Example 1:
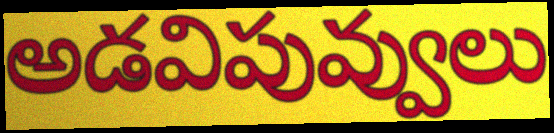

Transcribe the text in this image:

అడవిపువ్వులు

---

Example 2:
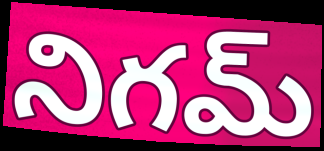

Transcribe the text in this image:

నిగమ్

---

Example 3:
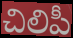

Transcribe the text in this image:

చిలిపీ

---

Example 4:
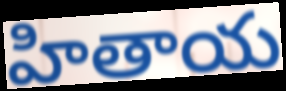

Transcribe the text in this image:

హితాయ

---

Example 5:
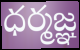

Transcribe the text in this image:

ధర్మజ్ఞ